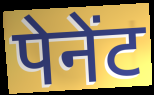
पेनेंट